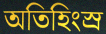
অতিহিংস্র